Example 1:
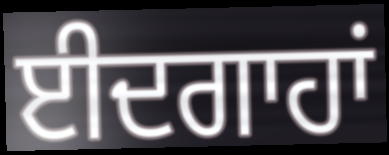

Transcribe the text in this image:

ਈਦਗਾਹਾਂ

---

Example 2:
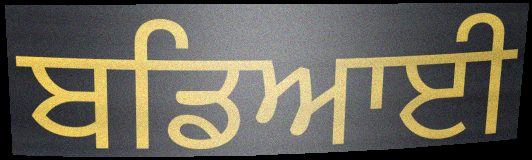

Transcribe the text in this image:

ਬਡਿਆਈ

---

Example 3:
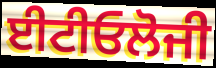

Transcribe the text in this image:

ਈਟੀਓਲੋਜੀ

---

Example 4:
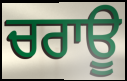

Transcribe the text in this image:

ਚਰਾਊ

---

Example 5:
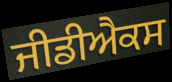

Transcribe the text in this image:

ਜੀਡੀਐਕਸ